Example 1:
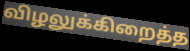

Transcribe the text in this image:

விழலுக்கிறைத்த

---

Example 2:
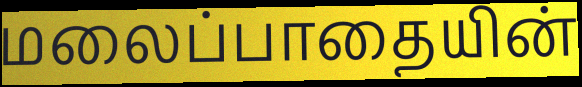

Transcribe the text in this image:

மலைப்பாதையின்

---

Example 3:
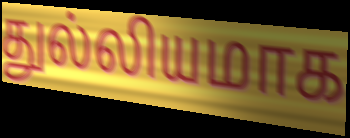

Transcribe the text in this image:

துல்லியமாக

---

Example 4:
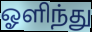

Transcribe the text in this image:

ஓளிந்து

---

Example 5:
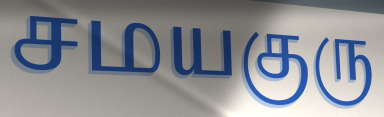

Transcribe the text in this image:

சமயகுரு